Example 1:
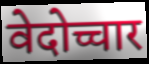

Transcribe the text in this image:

वेदोच्चार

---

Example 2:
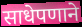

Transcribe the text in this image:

साधेपणाने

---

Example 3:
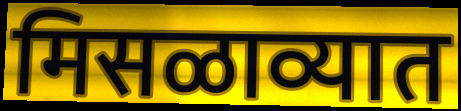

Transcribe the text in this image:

मिसळाव्यात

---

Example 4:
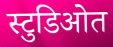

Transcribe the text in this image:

स्टुडिओत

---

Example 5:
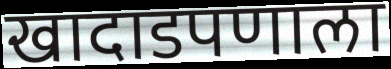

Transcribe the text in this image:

खादाडपणाला